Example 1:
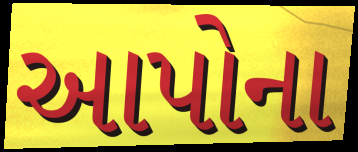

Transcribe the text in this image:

આપોના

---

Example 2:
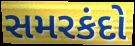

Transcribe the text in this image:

સમરકંદો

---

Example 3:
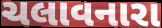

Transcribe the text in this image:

ચલાવનારા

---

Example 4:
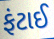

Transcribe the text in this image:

ફંટાઈ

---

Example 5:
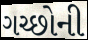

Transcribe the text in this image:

ગચ્છોની